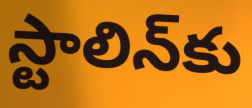
స్టాలిన్‌కు